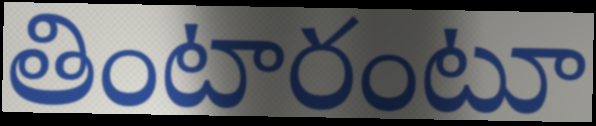
తింటారంటూ